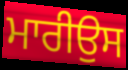
ਮਾਰੀਉਸ